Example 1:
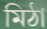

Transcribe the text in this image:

মিঠা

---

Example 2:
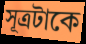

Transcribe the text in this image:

সূত্রটাকে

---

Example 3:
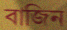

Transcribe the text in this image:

বাজিন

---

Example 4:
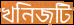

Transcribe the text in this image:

খনিজটি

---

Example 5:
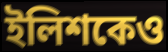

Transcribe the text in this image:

ইলিশকেও